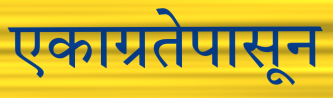
एकाग्रतेपासून